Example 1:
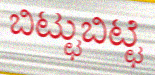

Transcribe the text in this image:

ಬಿಟ್ಟುಬಿಟ್ಟೆ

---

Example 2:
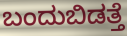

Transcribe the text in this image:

ಬಂದುಬಿಡತ್ತೆ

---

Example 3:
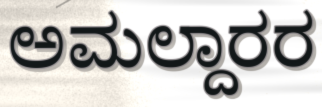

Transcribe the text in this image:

ಅಮಲ್ದಾರರ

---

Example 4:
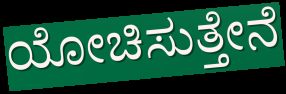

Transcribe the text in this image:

ಯೋಚಿಸುತ್ತೇನೆ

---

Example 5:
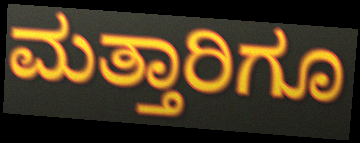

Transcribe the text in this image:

ಮತ್ತಾರಿಗೂ